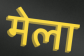
मेला